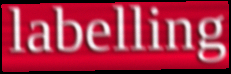
labelling